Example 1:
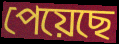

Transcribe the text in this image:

পেয়েছে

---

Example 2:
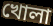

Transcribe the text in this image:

খোলা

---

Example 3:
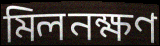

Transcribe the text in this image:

মিলনক্ষণ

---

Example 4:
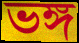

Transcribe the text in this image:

ভঙ্গ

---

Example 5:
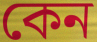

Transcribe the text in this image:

কেন